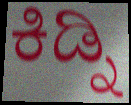
ಕಿಡ್ನಿ